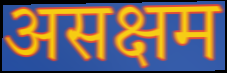
असक्षम